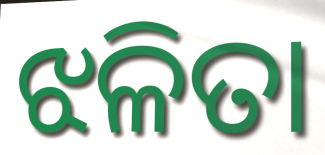
ଝଳିତା